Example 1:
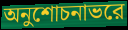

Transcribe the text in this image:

অনুশোচনাভরে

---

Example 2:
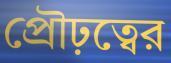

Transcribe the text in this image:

প্রৌঢ়ত্বের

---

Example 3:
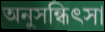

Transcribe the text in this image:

অনুসন্ধিৎসা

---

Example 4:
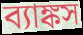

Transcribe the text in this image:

ব্যাঙ্কস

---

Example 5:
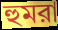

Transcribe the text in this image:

হুমরা